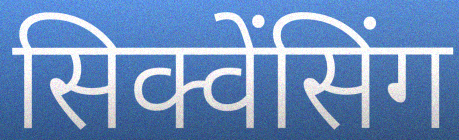
सिक्वेंसिंग